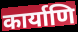
कार्याणि